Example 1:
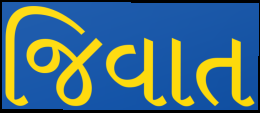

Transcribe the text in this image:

જિવાત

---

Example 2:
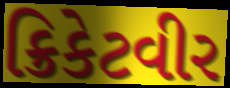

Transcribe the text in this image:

ક્રિકેટવીર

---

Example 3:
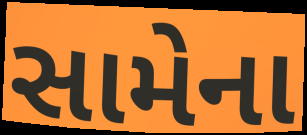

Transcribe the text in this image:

સામેના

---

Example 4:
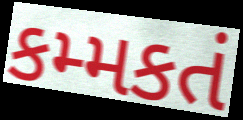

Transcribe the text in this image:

કમ્મકતં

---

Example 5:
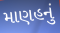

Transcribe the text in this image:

માણહનું